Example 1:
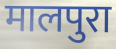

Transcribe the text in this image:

मालपुरा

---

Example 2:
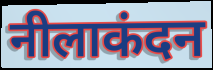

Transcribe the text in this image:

नीलाकंदन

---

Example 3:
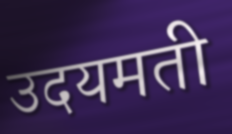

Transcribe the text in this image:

उदयमती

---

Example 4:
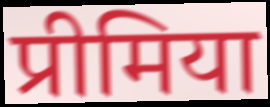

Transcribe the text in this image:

प्रीमिया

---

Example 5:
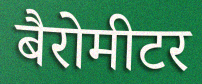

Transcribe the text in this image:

बैरोमीटर